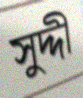
সুদ্দী